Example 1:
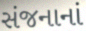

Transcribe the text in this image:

સંજનાનાં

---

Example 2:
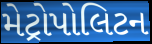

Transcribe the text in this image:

મેટ્રોપોલિટન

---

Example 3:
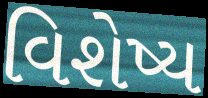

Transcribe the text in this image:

વિશેષ્ય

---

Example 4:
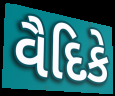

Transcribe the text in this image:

વૈદિકે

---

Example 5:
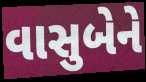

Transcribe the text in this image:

વાસુબેને